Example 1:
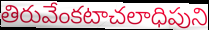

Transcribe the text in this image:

తిరువేంకటాచలాధిపుని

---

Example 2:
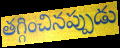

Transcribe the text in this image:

తగ్గించినప్పుడు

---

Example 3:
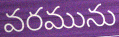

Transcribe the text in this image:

వరమును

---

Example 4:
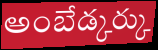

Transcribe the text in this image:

అంబేడ్కర్కు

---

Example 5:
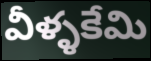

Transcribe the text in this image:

వీళ్ళకేమి